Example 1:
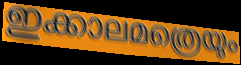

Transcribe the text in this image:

ഇക്കാലമത്രെയും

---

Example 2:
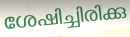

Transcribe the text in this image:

ശേഷിച്ചിരിക്കു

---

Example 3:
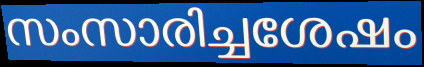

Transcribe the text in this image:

സംസാരിച്ചശേഷം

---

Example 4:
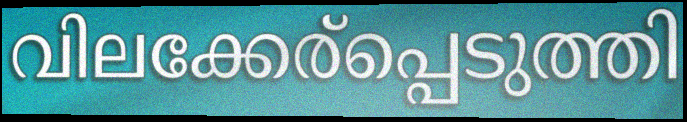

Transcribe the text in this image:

വിലക്കേര്പ്പെടുത്തി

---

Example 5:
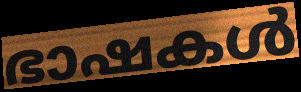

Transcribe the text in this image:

ഭാഷകൾ